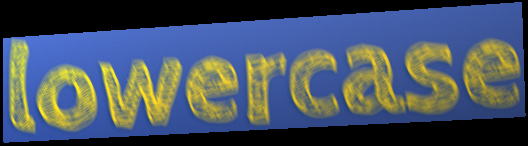
lowercase